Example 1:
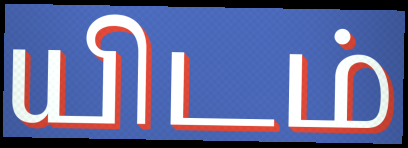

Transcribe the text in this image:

யிடம்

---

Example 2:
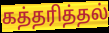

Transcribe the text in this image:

கத்தரித்தல்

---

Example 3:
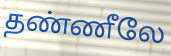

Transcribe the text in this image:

தண்ணீலே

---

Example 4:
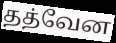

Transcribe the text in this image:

தத்வேன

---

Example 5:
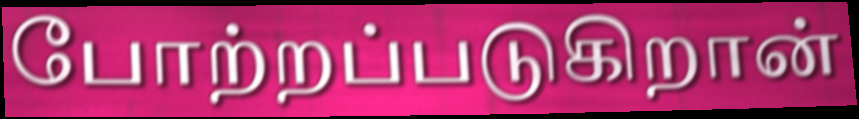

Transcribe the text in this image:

போற்றப்படுகிறான்